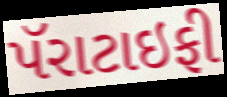
પૅરાટાઇફી